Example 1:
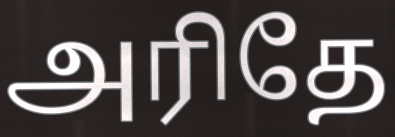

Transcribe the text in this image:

அரிதே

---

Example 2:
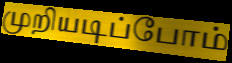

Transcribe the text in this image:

முறியடிப்போம்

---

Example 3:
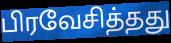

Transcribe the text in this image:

பிரவேசித்தது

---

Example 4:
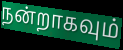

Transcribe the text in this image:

நன்றாகவும்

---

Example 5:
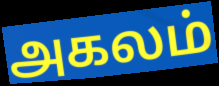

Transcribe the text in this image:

அகலம்